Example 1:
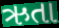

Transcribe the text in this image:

ઋતા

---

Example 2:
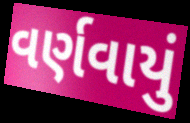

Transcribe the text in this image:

વર્ણવાયું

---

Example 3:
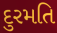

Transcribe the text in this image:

દુરમતિ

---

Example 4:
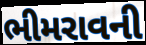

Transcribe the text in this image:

ભીમરાવની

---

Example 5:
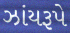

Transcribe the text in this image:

ઝાંયરૂપે